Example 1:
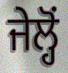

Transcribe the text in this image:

ਜੇਲ੍ਹੋਂ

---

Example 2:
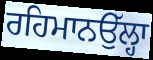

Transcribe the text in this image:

ਰਹਿਮਾਨਉੱਲ੍ਹਾ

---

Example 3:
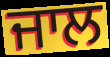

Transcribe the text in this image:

ਜਾਲ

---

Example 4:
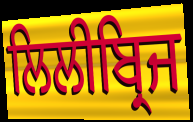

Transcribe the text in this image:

ਲਿਲੀਬ੍ਰਿਜ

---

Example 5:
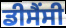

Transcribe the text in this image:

ਡੀਸੈਂਸੀ